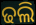
ଢଲି